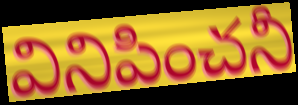
వినిపించనీ